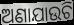
ଅଣାଯାଉଚି